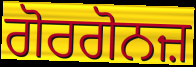
ਗੋਰਗੋਨਜ਼